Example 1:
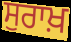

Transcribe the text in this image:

ਸੁਰਾਖ਼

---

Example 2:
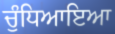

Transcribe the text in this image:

ਚੁੰਧਿਆਇਆ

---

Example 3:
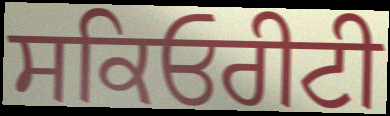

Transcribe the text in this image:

ਸਕਿਓਰੀਟੀ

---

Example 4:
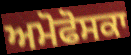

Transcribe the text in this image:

ਅਮੋਫੋਸਕਾ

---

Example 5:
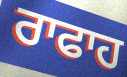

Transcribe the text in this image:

ਰਾਫਾਹ